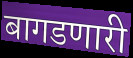
बागडणारी